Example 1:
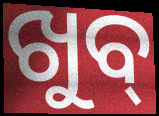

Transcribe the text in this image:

ଖୁବ୍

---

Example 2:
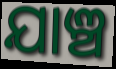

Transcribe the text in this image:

ଯାଞ୍ଚ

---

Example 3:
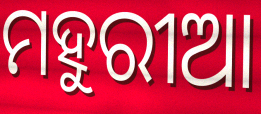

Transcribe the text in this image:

ମହୁରୀଆ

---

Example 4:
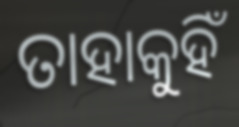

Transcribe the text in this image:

ତାହାକୁହିଁ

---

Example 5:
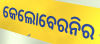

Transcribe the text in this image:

କେଲୋବେରନିର